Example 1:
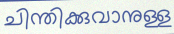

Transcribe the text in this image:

ചിന്തിക്കുവാനുള്ള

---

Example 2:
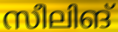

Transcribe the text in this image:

സീലിങ്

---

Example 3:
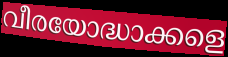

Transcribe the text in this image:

വീരയോദ്ധാക്കളെ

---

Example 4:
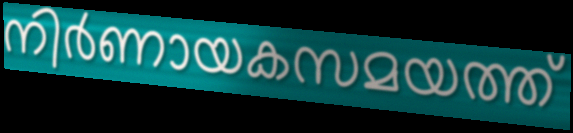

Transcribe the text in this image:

നിർണായകസമയത്ത്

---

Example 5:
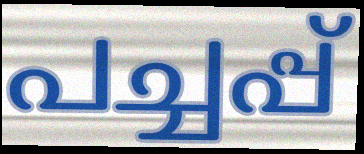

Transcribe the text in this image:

പച്ചപ്പ്